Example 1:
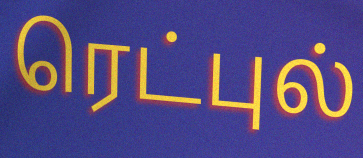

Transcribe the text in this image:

ரெட்புல்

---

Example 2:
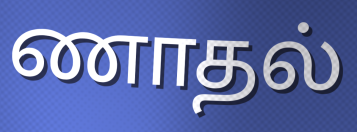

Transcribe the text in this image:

ணாதல்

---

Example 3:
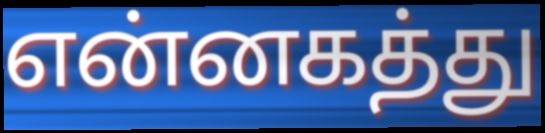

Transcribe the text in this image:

என்னகத்து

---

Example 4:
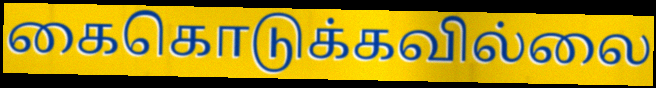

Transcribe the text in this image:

கைகொடுக்கவில்லை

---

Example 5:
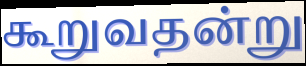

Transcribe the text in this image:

கூறுவதன்று